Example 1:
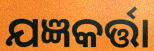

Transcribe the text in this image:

ଯଜ୍ଞକର୍ତ୍ତା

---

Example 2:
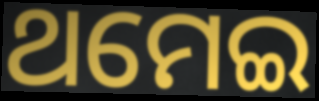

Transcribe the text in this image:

ଥମେଇ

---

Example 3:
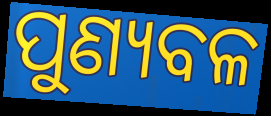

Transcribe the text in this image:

ପୁଣ୍ୟବଳ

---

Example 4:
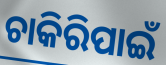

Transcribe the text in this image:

ଚାକିରିପାଇଁ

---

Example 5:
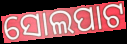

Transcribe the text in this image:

ସୋଲପାଟ